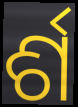
ର୍ଶ